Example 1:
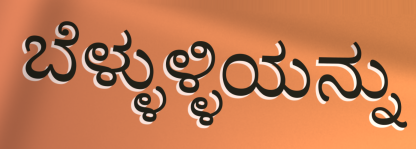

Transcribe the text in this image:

ಬೆಳ್ಳುಳ್ಳಿಯನ್ನು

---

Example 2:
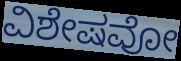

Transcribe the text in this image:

ವಿಶೇಷವೋ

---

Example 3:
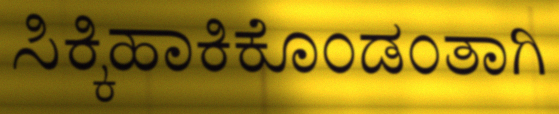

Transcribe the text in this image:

ಸಿಕ್ಕಿಹಾಕಿಕೊಂಡಂತಾಗಿ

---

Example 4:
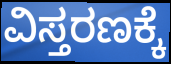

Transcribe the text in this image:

ವಿಸ್ತರಣಕ್ಕೆ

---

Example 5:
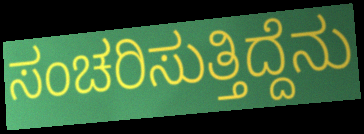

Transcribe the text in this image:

ಸಂಚರಿಸುತ್ತಿದ್ದೆನು